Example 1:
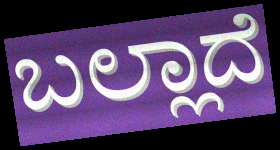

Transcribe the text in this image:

ಬಲ್ಲಾದೆ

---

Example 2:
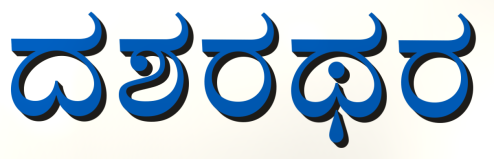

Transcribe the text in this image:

ದಶರಥರ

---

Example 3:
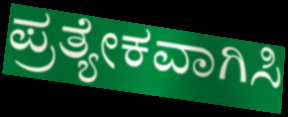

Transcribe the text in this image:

ಪ್ರತ್ಯೇಕವಾಗಿಸಿ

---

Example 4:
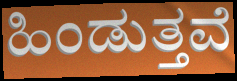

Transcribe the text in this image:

ಹಿಂಡುತ್ತವೆ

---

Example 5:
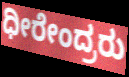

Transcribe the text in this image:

ಧೀರೇಂದ್ರರು